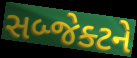
સબ્જેક્ટને